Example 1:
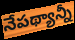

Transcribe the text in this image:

నేపథ్యాన్నీ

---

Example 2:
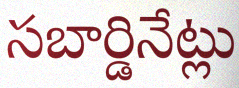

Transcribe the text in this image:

సబార్డినేట్లు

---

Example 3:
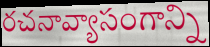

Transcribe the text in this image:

రచనావ్యాసంగాన్ని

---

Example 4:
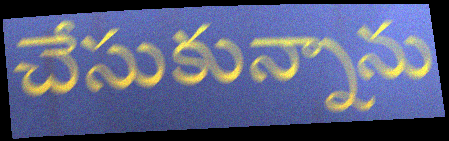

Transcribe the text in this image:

చేసుకున్నాను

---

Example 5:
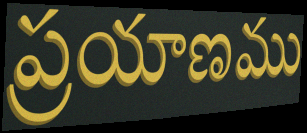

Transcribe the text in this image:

ప్రయాణము